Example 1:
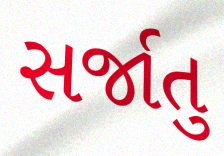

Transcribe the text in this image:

સર્જાતુ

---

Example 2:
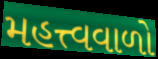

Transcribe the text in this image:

મહત્ત્વવાળો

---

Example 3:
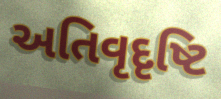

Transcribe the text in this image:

અતિવૃદૃષ્ટિ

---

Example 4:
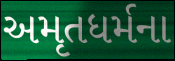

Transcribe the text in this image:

અમૃતધર્મના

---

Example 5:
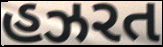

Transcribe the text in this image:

હઝરત